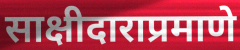
साक्षीदाराप्रमाणे